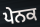
ਪੇਨਕ